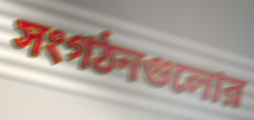
সংগঠনগুলোর